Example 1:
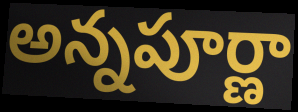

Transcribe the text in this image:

అన్నపూర్ణా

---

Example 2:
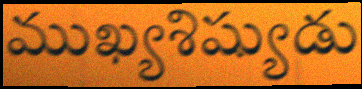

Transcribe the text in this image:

ముఖ్యశిష్యుడు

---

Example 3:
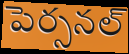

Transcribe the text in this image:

పెర్సనల్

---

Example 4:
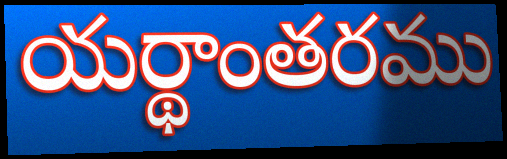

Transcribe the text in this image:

యర్థాంతరము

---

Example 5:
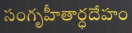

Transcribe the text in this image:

సంగృహీతార్ధదేహం